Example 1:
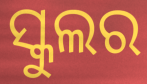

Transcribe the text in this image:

ସ୍କୁଲର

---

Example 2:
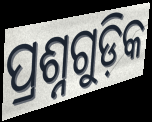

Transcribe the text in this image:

ପ୍ରଶ୍ନଗୁଡ଼ିକ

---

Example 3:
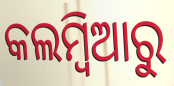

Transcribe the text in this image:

କଲମ୍ବିଆରୁ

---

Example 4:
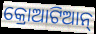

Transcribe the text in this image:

କ୍ରୋଆଟିଆନ୍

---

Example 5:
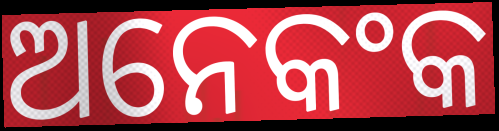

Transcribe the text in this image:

ଅନେକଂକ